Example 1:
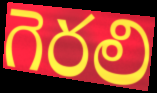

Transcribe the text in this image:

గెరలి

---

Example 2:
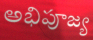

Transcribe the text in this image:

అభిపూజ్య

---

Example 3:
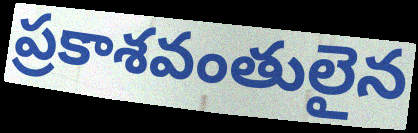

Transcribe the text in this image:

ప్రకాశవంతులైన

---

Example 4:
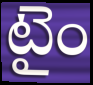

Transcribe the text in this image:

టైం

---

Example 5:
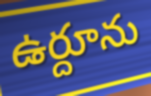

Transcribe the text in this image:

ఉర్దూను